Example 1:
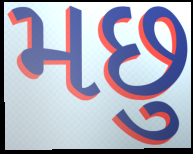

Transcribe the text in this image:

મછુ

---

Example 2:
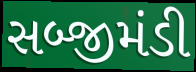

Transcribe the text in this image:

સબ્જીમંડી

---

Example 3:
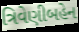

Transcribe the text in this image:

ત્રિવેણીબહેન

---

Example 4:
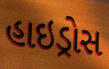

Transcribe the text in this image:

હાઇડ્રોસ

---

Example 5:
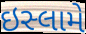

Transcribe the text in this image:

ઇસ્લામે